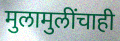
मुलामुलींचाही